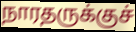
நாரதருக்குச்